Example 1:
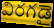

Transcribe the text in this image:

విరగడై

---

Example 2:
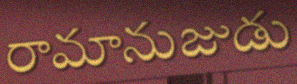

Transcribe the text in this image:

రామానుజుడు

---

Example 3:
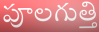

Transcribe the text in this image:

పూలగుత్తి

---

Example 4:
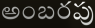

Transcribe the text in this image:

అంబరపు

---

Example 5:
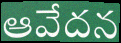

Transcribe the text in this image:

ఆవేదన